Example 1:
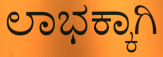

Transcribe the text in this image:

ಲಾಭಕ್ಕಾಗಿ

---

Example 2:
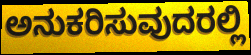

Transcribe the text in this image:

ಅನುಕರಿಸುವುದರಲ್ಲಿ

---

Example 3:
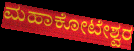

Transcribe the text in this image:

ಮಹಾಕೋಟೇಶ್ವರ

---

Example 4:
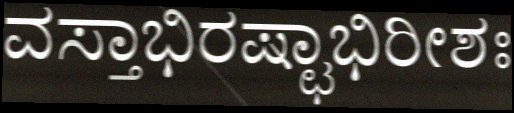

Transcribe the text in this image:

ವಸ್ತಾಭಿರಷ್ಟಾಭಿರೀಶಃ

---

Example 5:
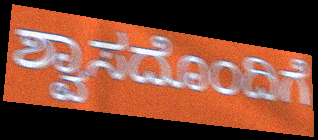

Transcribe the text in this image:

ಶ್ವಾಸದೊಂದಿಗೆ